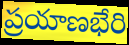
ప్రయాణభేరి